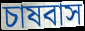
চাষবাস